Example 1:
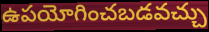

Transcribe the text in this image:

ఉపయోగించబడవచ్చు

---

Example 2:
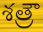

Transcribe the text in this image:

శత్రౌ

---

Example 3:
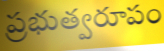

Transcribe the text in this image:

ప్రభుత్వరూపం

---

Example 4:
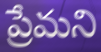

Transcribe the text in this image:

ప్రేమని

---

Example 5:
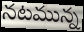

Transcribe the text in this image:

నటమున్న